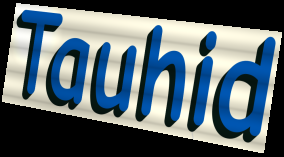
Tauhid